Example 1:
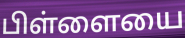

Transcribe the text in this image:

பிள்ளையை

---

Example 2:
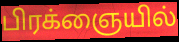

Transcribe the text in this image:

பிரக்ஞையில்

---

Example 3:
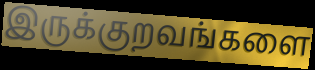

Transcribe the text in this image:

இருக்குறவங்களை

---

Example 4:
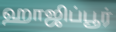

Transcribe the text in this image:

ஹாஜிப்பூர்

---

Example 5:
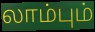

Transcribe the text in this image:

லாம்பும்